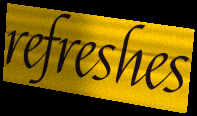
refreshes